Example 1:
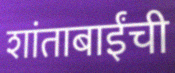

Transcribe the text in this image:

शांताबाईंची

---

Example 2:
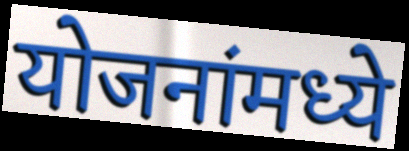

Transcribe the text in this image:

योजनांमध्ये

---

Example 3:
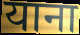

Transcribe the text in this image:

याना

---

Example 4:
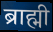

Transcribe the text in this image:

ब्राह्मी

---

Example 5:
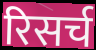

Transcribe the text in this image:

रिसर्च